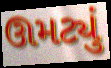
ઊમટ્યું